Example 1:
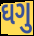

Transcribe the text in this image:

ઘગુ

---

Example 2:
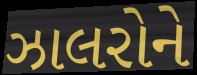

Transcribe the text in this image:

ઝાલરોને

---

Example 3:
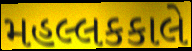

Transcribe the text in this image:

મહલ્લકકાલે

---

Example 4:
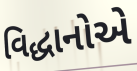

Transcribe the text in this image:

વિદ્ધાનોએ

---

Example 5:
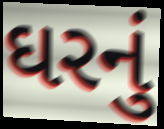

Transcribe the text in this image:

ઘરનું